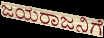
ಜಯರಾಜನಿಗೆ